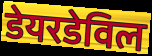
डेयरडेविल